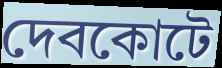
দেবকোটে